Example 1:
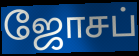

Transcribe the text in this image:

ஜோசப்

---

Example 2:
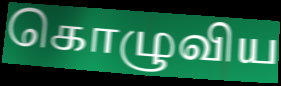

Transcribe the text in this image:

கொழுவிய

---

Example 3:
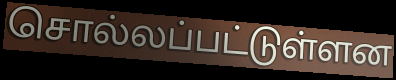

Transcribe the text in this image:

சொல்லப்பட்டுள்ளன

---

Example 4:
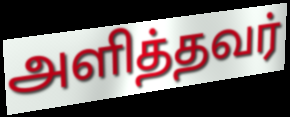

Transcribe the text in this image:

அளித்தவர்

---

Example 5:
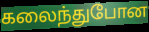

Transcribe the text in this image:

கலைந்துபோன